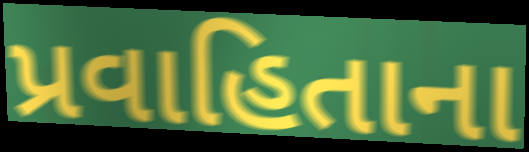
પ્રવાહિતાના